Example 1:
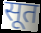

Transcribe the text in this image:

सूत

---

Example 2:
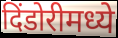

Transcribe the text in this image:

दिंडोरीमध्ये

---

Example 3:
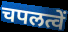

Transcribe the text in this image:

चपलत्वें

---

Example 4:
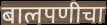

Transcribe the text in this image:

बालपणीचा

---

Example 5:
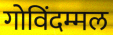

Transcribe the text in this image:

गोविंदम्मल